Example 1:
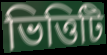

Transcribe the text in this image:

ভিত্তিটি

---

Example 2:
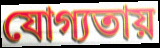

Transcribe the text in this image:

যোগ্যতায়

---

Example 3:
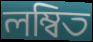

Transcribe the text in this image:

লম্বিত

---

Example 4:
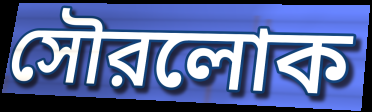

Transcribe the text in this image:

সৌরলোক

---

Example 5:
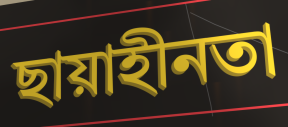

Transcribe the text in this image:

ছায়াহীনতা